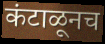
कंटाळूनच